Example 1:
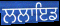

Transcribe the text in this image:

ਲਲਾਇਡ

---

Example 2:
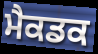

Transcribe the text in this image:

ਮੈਕਡਕ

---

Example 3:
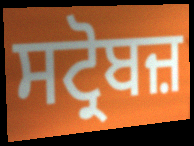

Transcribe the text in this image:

ਸਟ੍ਰੋਬਜ਼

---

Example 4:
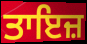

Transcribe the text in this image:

ਤਾਇਜ਼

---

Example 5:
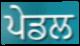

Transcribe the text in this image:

ਪੇਡਲ